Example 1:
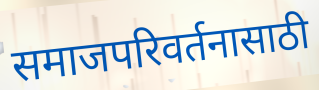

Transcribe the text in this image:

समाजपरिवर्तनासाठी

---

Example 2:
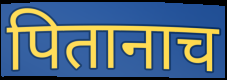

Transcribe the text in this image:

पितानाच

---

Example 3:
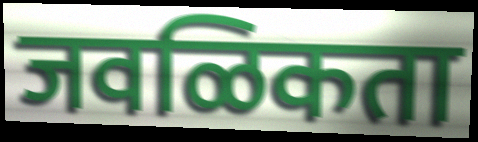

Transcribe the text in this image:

जवळिकता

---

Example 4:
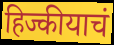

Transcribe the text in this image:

हिज्कीयाचं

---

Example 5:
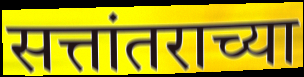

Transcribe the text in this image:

सत्तांतराच्या